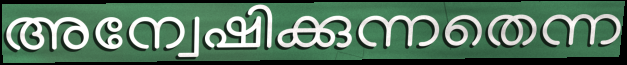
അന്വേഷിക്കുന്നതെന്ന